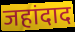
जहांदाद